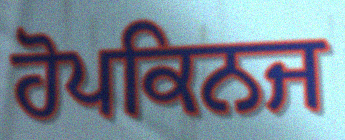
ਹੋਪਕਿਨਜ